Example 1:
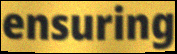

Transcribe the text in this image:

ensuring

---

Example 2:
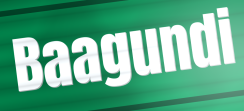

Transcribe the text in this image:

Baagundi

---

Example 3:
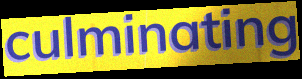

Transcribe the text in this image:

culminating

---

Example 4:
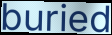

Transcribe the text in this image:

buried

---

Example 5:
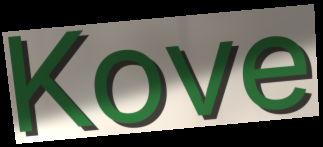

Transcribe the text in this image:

Kove